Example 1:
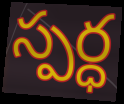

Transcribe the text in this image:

స్పర్ధ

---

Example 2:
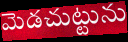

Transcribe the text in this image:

మెడచుట్టును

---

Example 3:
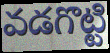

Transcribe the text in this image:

వడగొట్టి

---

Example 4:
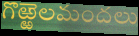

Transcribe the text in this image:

గొఱ్ఱెలమందలు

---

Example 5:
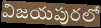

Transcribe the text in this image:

విజయపురలో